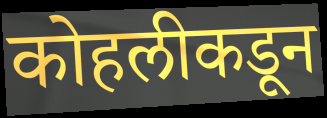
कोहलीकडून